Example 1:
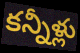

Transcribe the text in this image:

కన్నీళ్లు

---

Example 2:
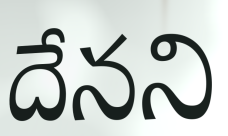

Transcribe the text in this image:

దేనని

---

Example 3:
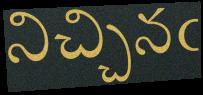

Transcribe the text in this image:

నిచ్చినఁ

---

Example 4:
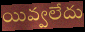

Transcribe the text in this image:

యివ్వలేదు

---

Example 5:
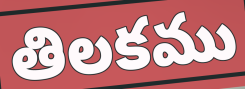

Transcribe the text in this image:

తిలకము